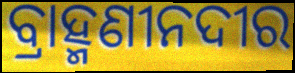
ବ୍ରାହ୍ମଣୀନଦୀର